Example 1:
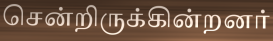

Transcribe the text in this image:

சென்றிருக்கின்றனர்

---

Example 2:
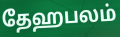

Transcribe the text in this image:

தேஹபலம்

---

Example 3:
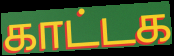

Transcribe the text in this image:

காட்டக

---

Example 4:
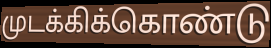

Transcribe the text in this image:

முடக்கிக்கொண்டு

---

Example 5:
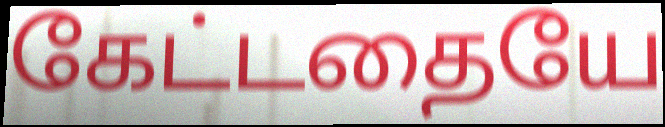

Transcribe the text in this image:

கேட்டதையே